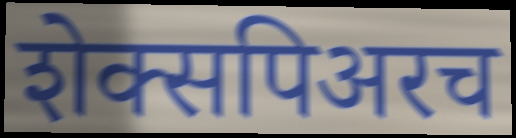
शेक्सपिअरच